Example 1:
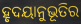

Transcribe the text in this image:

ହୃଦୟାନୁଭୂତିର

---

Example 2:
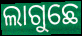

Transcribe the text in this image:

ଲାଗୁଛେ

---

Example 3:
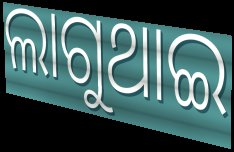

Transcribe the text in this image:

ଲାଗୁଥାଇ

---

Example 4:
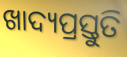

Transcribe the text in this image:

ଖାଦ୍ୟପ୍ରସ୍ତୁତି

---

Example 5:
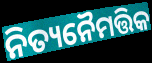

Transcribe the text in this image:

ନିତ୍ୟନୈମତ୍ତିକ